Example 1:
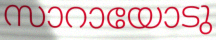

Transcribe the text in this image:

സാറായോടു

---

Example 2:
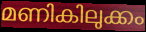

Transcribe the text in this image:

മണികിലുക്കം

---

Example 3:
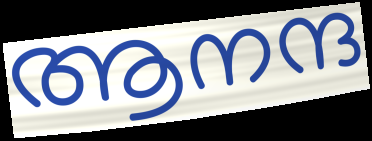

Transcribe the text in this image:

ആനന്ദ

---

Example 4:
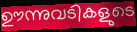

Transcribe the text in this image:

ഊന്നുവടികളുടെ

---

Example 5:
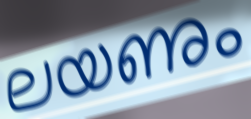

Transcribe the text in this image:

ലയണും